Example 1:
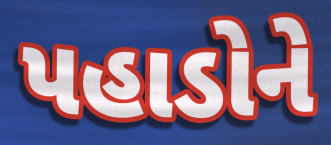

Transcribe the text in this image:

પહાડોને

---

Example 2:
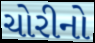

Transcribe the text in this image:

ચોરીનો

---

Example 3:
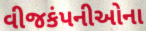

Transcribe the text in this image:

વીજકંપનીઓના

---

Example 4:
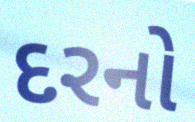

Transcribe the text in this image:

દરનો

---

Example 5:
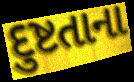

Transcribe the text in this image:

દુષ્ટતાના